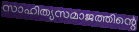
സാഹിത്യസമാജത്തിന്റെ